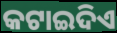
କଟାଇଦିଏ